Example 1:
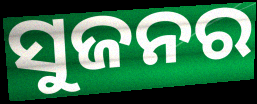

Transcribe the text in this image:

ସୁଜନର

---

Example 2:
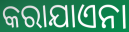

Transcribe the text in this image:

କରାଯାଏନା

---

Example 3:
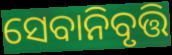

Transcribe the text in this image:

ସେବାନିବୃତ୍ତି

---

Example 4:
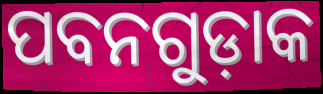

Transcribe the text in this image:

ପବନଗୁଡ଼ାକ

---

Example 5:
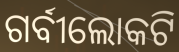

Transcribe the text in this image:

ଗର୍ବୀଲୋକଟି